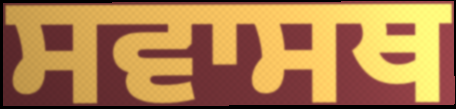
ਸਵਾਸਥ